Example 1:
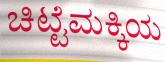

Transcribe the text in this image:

ಚಿಟ್ಟೆಮಕ್ಕಿಯ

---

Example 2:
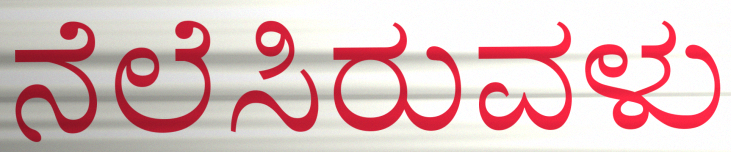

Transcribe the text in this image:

ನೆಲೆಸಿರುವಳು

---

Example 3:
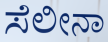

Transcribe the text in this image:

ಸೆಲೀನಾ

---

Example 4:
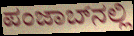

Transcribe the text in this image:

ಪಂಜಾಬ್‌ನಲ್ಲಿ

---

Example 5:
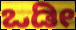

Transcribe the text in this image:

ಒಡೀ